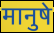
मानुषे